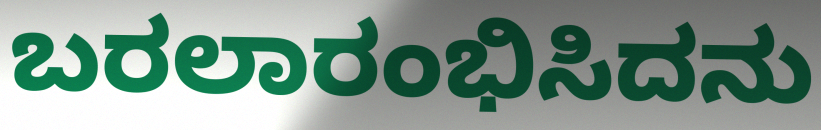
ಬರಲಾರಂಭಿಸಿದನು